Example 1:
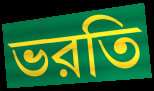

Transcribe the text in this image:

ভরতি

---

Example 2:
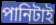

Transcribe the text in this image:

পানিটাই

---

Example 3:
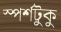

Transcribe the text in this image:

স্পর্শটুকু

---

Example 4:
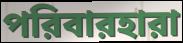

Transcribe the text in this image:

পরিবারহারা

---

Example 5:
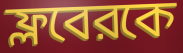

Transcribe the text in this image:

ফ্লবেরকে